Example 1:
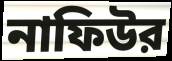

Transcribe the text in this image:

নাফিউর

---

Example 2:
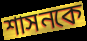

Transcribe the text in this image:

শাসনকে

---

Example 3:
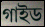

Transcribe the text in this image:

গাইড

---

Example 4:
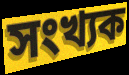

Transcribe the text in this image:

সংখ্যক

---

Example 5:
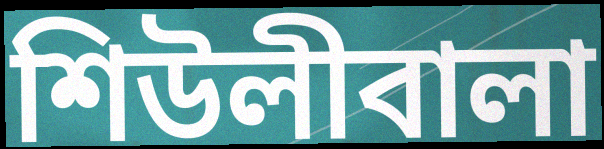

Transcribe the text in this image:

শিউলীবালা